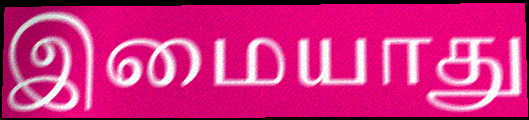
இமையாது